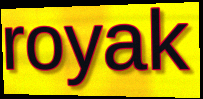
royak